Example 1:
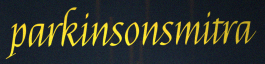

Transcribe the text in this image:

parkinsonsmitra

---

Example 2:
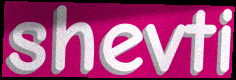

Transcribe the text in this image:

shevti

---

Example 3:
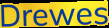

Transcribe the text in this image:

Drewes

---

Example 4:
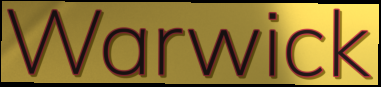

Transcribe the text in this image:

Warwick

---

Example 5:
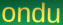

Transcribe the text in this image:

ondu